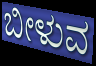
ಬೀಳುವ